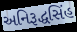
અનિરૂદ્ધસિંહ